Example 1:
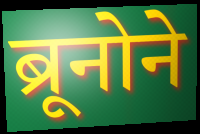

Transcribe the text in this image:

ब्रूनोने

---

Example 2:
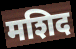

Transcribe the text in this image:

मशिद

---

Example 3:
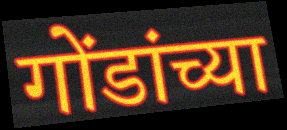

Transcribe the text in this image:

गोंडांच्या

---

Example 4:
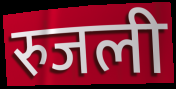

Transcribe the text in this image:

रुजली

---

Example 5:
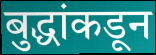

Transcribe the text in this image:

बुद्धांकडून